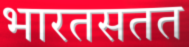
भारतसतत